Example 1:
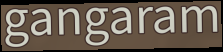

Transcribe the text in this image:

gangaram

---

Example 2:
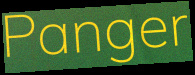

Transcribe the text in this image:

Panger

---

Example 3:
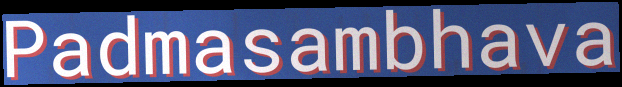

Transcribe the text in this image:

Padmasambhava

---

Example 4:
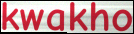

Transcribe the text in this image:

kwakho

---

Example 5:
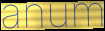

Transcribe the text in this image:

anum